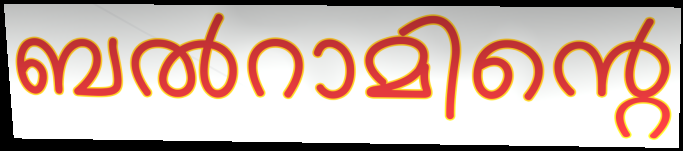
ബൽറാമിന്റെ